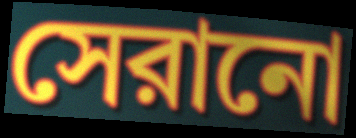
সেরানো